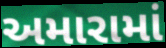
અમારામાં